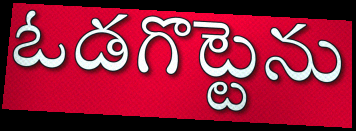
ఓడగొట్టెను